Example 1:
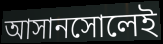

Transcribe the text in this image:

আসানসোলেই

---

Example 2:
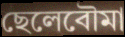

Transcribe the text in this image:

ছেলেবৌমা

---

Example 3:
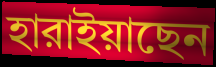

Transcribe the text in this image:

হারাইয়াছেন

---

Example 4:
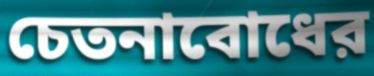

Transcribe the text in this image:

চেতনাবোধের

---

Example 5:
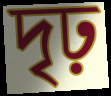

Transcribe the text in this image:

দৃঢ়